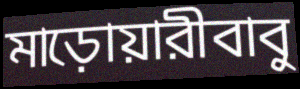
মাড়োয়ারীবাবু